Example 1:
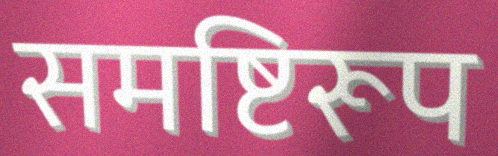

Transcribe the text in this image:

समष्टिरूप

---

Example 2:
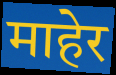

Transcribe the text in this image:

माहेर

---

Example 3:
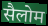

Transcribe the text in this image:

सैलोम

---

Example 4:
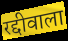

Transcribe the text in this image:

रद्दीवाला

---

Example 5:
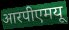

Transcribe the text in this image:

आरपीएमयू